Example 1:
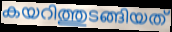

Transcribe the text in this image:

കയറിത്തുടങ്ങിയത്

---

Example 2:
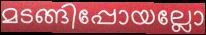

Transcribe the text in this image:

മടങ്ങിപ്പോയല്ലോ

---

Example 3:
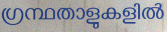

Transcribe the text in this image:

ഗ്രന്ഥതാളുകളിൽ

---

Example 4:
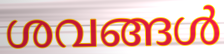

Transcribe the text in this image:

ശവങ്ങൾ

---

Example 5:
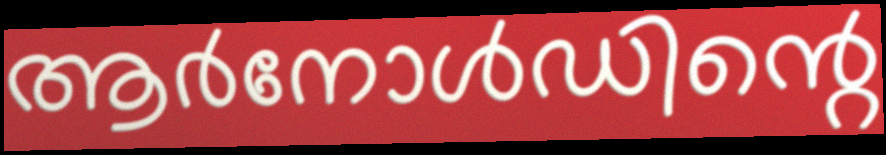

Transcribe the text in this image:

ആർനോൾഡിന്റെ